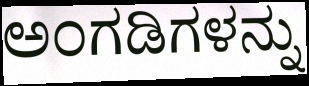
ಅಂಗಡಿಗಳನ್ನು